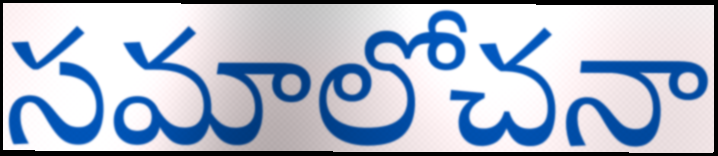
సమాలోచనా